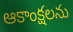
ఆకాంక్షలను